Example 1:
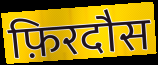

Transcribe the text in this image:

फ़िरदौस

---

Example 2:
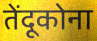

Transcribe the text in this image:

तेंदूकोना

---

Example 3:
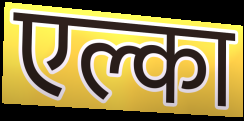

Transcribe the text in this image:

एल्का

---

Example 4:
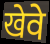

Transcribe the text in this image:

खेवे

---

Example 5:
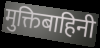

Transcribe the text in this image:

मुक्तिबाहिनी